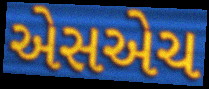
એસએચ